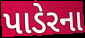
પાડેરના